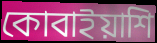
কোবাইয়াশি